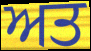
ਅਤ